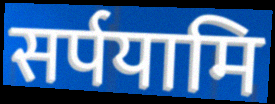
सर्पयामि